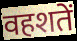
वहशतें